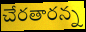
చేరతారన్న